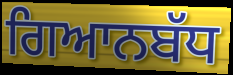
ਗਿਆਨਬੱਧ